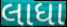
લાધા